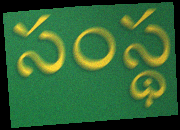
సంస్థ